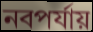
নবপর্যায়